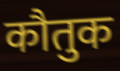
कौतुक